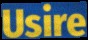
Usire